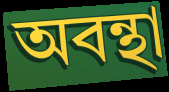
অবন্থা